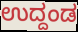
ಉದ್ದಂಡ